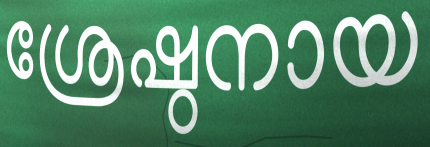
ശ്രേഷ്ഠനായ